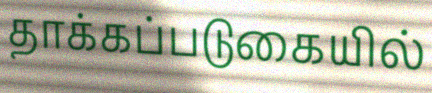
தாக்கப்படுகையில்